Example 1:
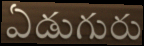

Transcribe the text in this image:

ఏడుగురు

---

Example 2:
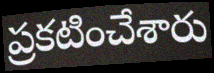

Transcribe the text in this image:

ప్రకటించేశారు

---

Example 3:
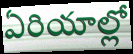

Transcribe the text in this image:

ఏరియాల్లో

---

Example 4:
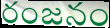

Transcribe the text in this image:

రంజనం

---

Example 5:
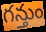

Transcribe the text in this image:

గన్తుం